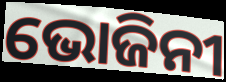
ଭୋଜିନୀ